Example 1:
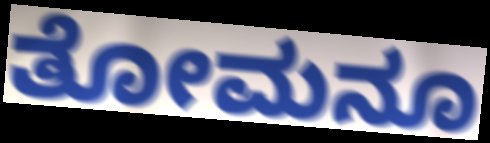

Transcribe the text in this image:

ತೋಮನೂ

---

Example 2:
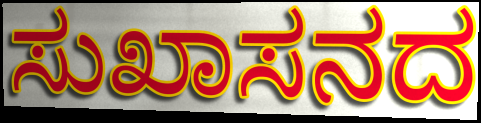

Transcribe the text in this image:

ಸುಖಾಸನದ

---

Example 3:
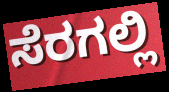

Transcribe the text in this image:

ಸೆರಗಲ್ಲಿ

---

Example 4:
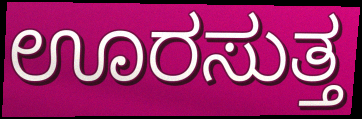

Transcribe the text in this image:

ಊರಸುತ್ತ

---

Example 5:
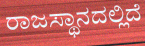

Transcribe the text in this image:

ರಾಜಸ್ಥಾನದಲ್ಲಿದೆ